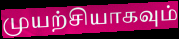
முயற்சியாகவும்